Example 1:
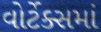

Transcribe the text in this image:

વોર્ટેક્સમાં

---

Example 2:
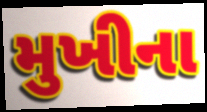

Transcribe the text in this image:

મુખીના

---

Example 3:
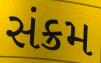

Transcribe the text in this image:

સંક્રમ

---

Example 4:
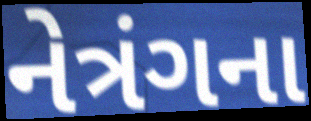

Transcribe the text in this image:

નેત્રંગના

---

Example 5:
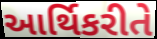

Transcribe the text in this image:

આર્થિકરીતે